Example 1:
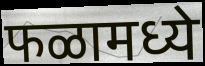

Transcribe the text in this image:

फळामध्ये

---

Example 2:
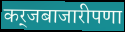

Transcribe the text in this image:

कर्जबाजारीपणा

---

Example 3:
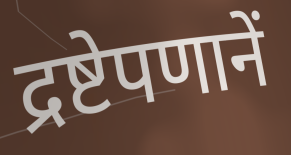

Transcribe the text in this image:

द्रष्टेपणानें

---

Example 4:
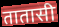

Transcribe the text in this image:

तातासी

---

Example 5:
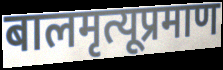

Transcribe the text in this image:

बालमृत्यूप्रमाण